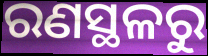
ରଣସ୍ଥଳରୁ